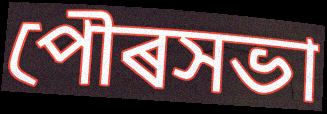
পৌৰসভা